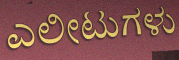
ಎಲೀಟುಗಳು